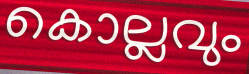
കൊല്ലവും